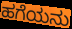
ಹಗೆಯನು